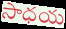
సాధయ